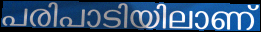
പരിപാടിയിലാണ്